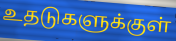
உதடுகளுக்குள்